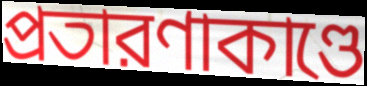
প্রতারণাকাণ্ডে